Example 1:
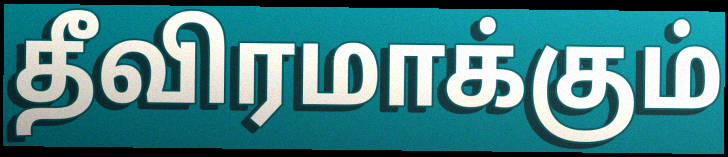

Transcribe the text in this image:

தீவிரமாக்கும்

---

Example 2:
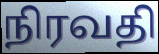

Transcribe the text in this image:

நிரவதி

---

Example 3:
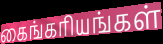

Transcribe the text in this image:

கைங்கரியங்கள்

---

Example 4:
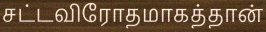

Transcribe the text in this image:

சட்டவிரோதமாகத்தான்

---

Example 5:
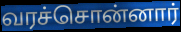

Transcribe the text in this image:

வரச்சொன்னார்